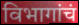
विभागांचं